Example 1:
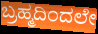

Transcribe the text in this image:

ಬ್ರಹ್ಮದಿಂದಲೇ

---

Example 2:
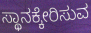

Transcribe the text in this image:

ಸ್ಥಾನಕ್ಕೇರಿಸುವ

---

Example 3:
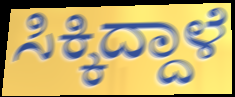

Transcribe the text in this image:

ಸಿಕ್ಕಿದ್ದಾಳೆ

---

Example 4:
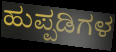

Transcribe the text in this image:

ಹುಪ್ಪಡಿಗಳ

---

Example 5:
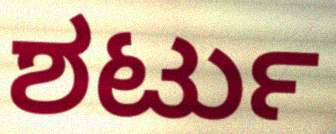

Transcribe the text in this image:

ಶರ್ಟು